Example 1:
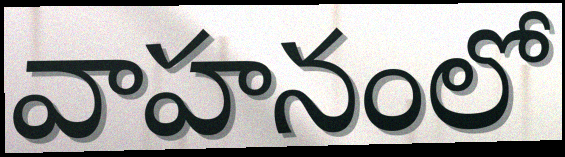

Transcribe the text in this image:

వాహనంలో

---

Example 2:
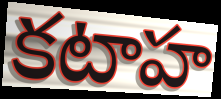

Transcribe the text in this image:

కటాహ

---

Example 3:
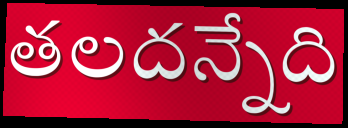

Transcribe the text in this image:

తలదన్నేది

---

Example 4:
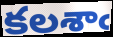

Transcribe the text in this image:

కలశాఁ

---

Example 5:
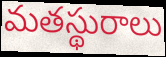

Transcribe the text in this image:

మతస్థురాలు